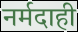
नर्मदाही